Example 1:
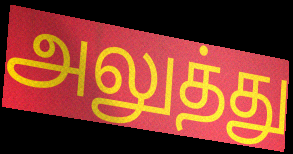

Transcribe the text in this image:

அலுத்து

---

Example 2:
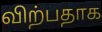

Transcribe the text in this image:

விற்பதாக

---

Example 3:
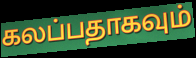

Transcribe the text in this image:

கலப்பதாகவும்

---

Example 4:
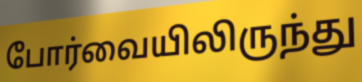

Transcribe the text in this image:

போர்வையிலிருந்து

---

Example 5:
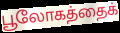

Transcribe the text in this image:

பூலோகத்தைக்